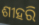
ଶୀହରି